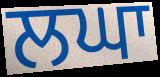
ਲਘਾ